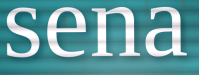
sena